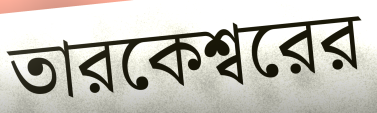
তারকেশ্বরের